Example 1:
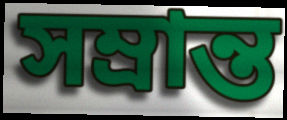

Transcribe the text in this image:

সম্রান্ত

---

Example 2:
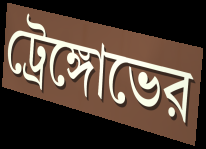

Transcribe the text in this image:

ট্রেঙ্গোভের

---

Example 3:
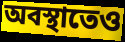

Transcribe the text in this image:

অবস্থাতেও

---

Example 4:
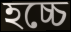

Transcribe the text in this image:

হচ্চে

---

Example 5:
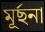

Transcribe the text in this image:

মূর্ছনা